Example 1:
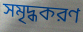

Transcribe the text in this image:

সমৃদ্ধকরণ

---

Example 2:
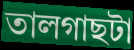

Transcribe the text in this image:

তালগাছটা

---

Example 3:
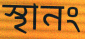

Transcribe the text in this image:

স্থানং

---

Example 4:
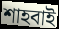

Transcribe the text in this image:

শাহবাই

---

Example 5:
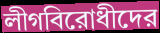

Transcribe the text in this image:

লীগবিরোধীদের